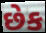
છેક